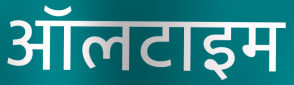
ऑलटाइम